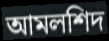
আমলশিদ